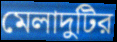
মেলাদুটির